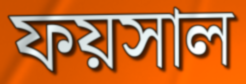
ফয়সাল